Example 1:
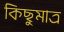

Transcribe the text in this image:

কিছুমাত্র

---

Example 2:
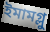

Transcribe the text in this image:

ইমামগ্লু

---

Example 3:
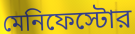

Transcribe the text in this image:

মেনিফেস্টোর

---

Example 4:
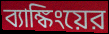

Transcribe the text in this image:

ব্যাঙ্কিংয়ের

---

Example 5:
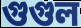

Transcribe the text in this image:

গুগুল